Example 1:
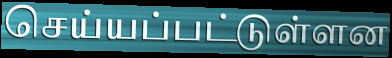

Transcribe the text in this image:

செய்யப்பட்டுள்ளன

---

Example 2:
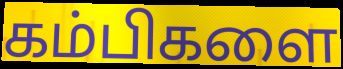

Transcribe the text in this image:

கம்பிகளை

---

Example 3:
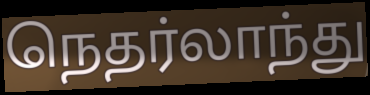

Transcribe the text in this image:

நெதர்லாந்து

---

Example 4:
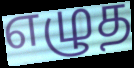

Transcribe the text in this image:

எழுத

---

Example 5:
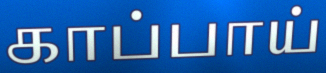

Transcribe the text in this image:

காப்பாய்